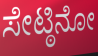
ಸೇಟ್ಠಿನೋ